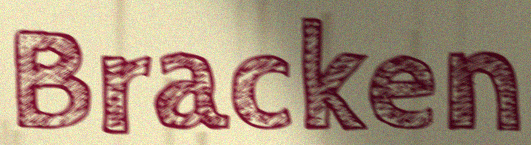
Bracken